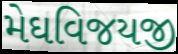
મેઘવિજયજી